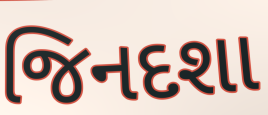
જિનદશા